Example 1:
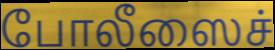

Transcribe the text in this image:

போலீஸைச்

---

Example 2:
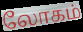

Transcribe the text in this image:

லோகம்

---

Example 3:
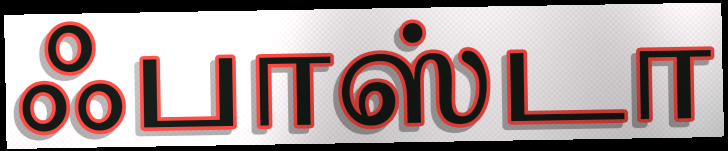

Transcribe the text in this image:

ஃபாஸ்டா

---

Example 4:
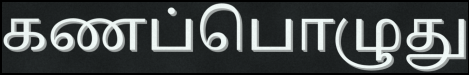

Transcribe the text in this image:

கணப்பொழுது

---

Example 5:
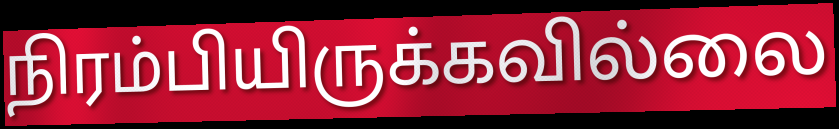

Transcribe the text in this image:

நிரம்பியிருக்கவில்லை